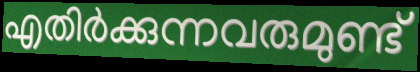
എതിർക്കുന്നവരുമുണ്ട്